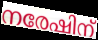
നരേഷിന്